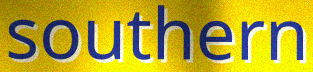
southern